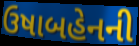
ઉષાબહેનની